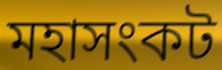
মহাসংকট